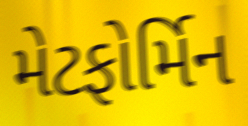
મેટફોર્મિન